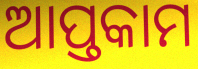
ଆପ୍ତକାମ